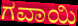
ಗವಾಯಿ